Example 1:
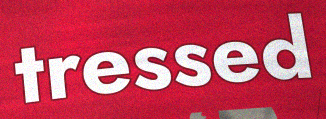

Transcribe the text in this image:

tressed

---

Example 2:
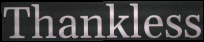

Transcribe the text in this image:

Thankless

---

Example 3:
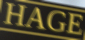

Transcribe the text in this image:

HAGE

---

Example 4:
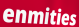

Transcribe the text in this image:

enmities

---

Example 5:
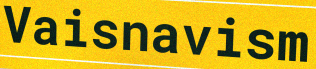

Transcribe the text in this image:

Vaisnavism